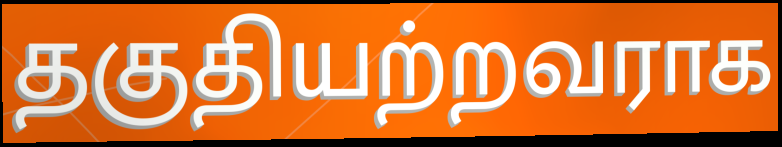
தகுதியற்றவராக